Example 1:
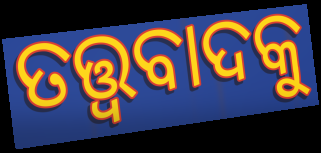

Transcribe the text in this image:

ତତ୍ତ୍ୱବାଦକୁ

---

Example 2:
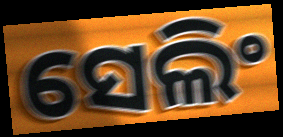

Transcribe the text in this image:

ସେଲିଂ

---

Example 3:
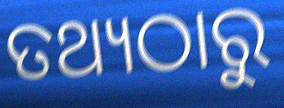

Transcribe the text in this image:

ତଥ୍ୟଠାରୁ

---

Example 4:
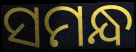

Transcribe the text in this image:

ସମନ୍ଧ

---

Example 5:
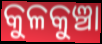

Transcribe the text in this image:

କୁଳକୁଞ୍ଚା